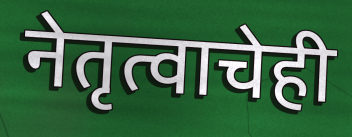
नेतृत्वाचेही